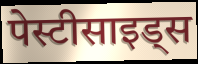
पेस्टीसाइड्स